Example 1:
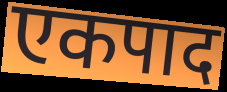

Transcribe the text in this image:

एकपाद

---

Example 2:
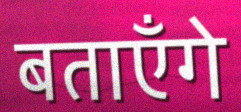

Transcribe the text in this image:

बताएँगे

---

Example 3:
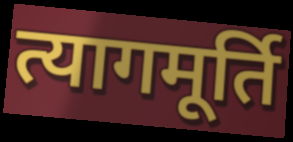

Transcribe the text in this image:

त्यागमूर्ति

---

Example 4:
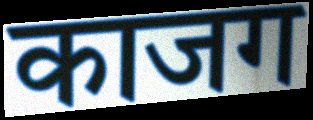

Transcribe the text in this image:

काजग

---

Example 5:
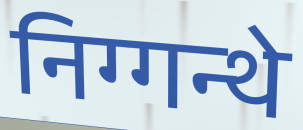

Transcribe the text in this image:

निग्गन्थे